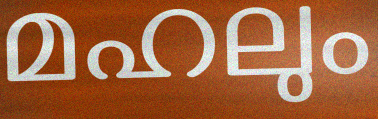
മഹലും